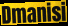
Dmanisi